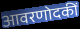
आवरणोदकीं